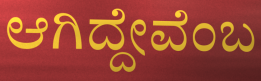
ಆಗಿದ್ದೇವೆಂಬ